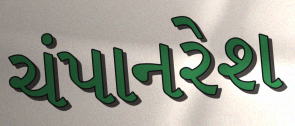
ચંપાનરેશ